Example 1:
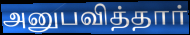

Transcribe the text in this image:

அனுபவித்தார்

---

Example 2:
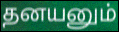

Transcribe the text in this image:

தனயனும்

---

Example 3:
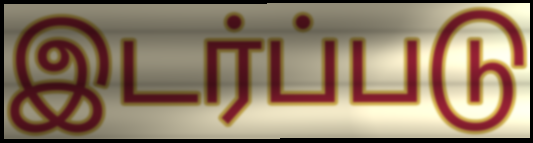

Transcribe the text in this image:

இடர்ப்படு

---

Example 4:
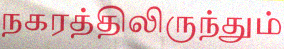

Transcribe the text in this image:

நகரத்திலிருந்தும்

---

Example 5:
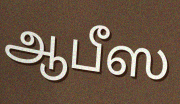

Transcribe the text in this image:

ஆபீஸ